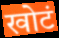
खोटं